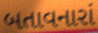
બતાવનારાં